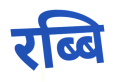
रब्बि